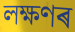
লক্ষণৰ